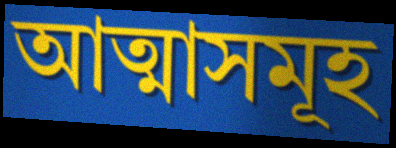
আত্মাসমূহ